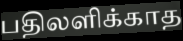
பதிலளிக்காத